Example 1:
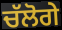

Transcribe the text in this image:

ਚੱਲੋਗੇ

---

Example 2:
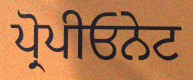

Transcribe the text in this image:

ਪ੍ਰੋਪੀਓਨੇਟ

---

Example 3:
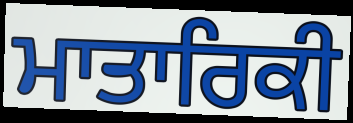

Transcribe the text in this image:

ਮਾਤਾਰਿਕੀ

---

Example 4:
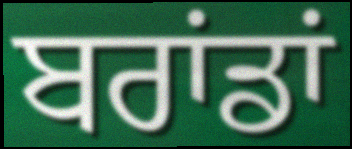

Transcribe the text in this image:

ਬਰਾਂਡਾਂ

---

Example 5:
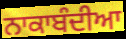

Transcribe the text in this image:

ਨਾਕਾਬੰਦੀਆ